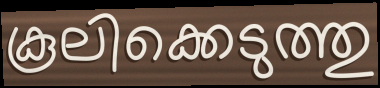
കൂലിക്കെടുത്തു